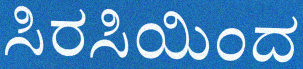
ಸಿರಸಿಯಿಂದ